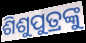
ଶିଶୁପୁତ୍ରଙ୍କୁ